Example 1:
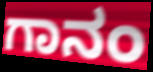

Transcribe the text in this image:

ಗಾನಂ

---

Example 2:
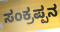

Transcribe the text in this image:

ಸಂಕ್ರಪ್ಪನ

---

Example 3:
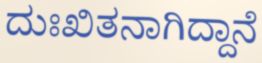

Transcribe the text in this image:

ದುಃಖಿತನಾಗಿದ್ದಾನೆ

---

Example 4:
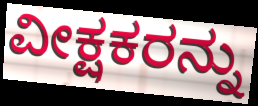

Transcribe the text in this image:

ವೀಕ್ಷಕರನ್ನು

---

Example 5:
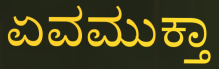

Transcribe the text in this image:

ಏವಮುಕ್ತಾ